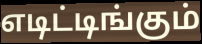
எடிட்டிங்கும்